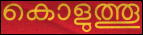
കൊളുത്തൂ